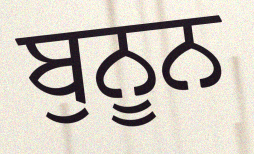
ਬੁਨੂਨ